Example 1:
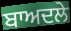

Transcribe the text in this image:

ਬਾਅਦਲੇ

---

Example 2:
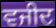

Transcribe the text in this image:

ਵਜੀਦ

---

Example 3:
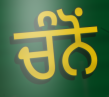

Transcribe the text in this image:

ਚੰਨੋਂ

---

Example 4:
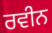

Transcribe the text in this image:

ਰਵੀਨ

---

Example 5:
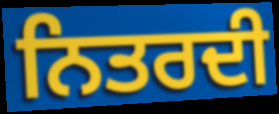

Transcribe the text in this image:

ਨਿਤਰਦੀ